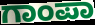
ಗಾಂಪಾ